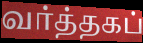
வர்த்தகப்